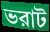
ভরাট